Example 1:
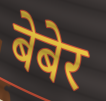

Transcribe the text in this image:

बेबेर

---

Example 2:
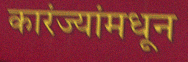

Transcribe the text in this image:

कारंज्यांमधून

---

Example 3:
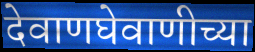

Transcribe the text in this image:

देवाणघेवाणीच्या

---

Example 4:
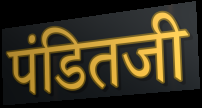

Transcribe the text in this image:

पंडितजी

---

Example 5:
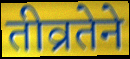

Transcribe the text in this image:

तीव्रतेने